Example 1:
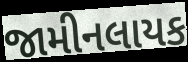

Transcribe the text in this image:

જામીનલાયક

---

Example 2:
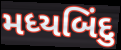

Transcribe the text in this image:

મધ્યબિંદુ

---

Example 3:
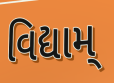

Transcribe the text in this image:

વિદ્યામ્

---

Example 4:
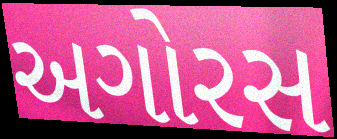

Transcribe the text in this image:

અગોરસ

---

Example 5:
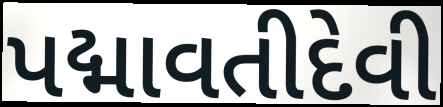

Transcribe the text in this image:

પદ્માવતીદેવી